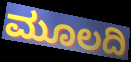
ಮೂಲದಿ